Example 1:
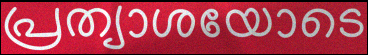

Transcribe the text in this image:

പ്രത്യാശയോടെ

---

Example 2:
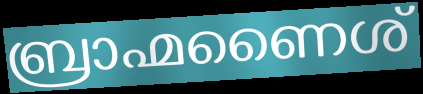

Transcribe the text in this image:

ബ്രാഹ്മണൈശ്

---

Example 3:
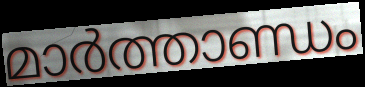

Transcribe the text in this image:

മാർത്താണ്ഡം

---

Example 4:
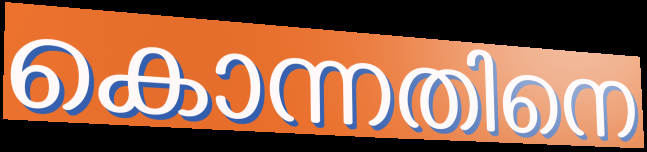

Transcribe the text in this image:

കൊന്നതിനെ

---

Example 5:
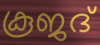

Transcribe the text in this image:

കൂജദ്